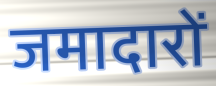
जमादारों